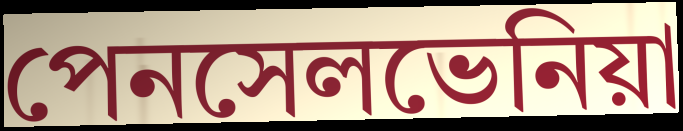
পেনসেলভেনিয়া